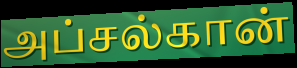
அப்சல்கான்